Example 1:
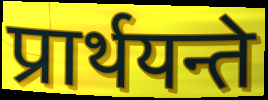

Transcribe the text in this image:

प्रार्थयन्ते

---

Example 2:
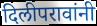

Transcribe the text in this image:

दिलीपरावांनी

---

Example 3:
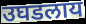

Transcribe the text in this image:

उघडलाय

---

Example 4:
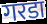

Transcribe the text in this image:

गरडा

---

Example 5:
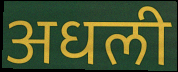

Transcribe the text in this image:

अधली